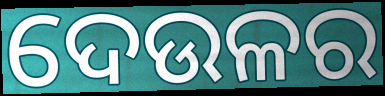
ଦେଉଳର